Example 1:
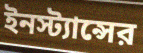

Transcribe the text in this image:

ইনস্ট্যান্সের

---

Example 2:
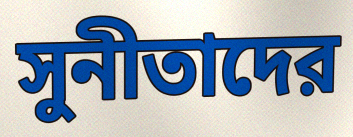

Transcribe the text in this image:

সুনীতাদের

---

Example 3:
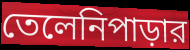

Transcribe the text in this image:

তেলেনিপাড়ার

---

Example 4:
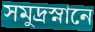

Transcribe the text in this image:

সমুদ্রস্নানে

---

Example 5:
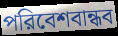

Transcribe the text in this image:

পরিবেশবান্ধব